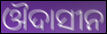
ଔଦାସୀନ